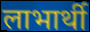
लाभार्थी